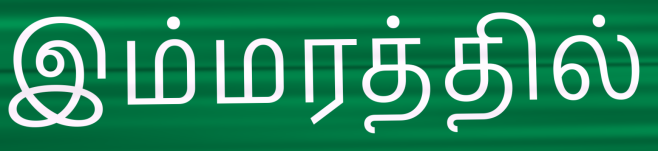
இம்மரத்தில்